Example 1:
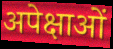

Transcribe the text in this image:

अपेक्षाओं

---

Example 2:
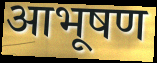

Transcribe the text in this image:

आभूषण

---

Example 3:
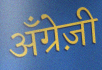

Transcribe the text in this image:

अँग्रेज़ी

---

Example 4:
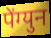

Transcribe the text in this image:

पेंग्युन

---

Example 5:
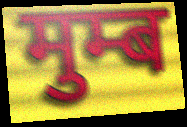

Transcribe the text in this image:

मुम्ब